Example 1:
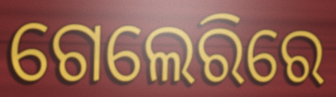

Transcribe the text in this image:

ଗେଲେରିରେ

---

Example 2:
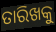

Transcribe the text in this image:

ତାରିଖକୁ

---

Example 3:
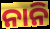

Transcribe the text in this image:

ନାନି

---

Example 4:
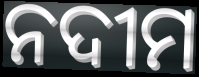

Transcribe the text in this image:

ନଦୀମ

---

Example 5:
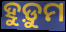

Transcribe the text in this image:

ହୁଡ଼ୁମ